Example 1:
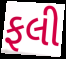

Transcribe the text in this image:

ફલી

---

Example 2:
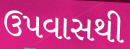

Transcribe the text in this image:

ઉપવાસથી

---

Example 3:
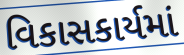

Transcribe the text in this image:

વિકાસકાર્યમાં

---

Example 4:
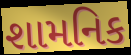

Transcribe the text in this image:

શામનિક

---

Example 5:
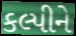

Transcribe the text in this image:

કલ્પીને